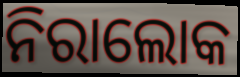
ନିରାଲୋକ